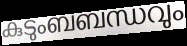
കുടുംബബന്ധവും